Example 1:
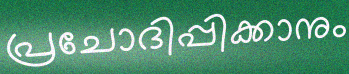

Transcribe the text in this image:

പ്രചോദിപ്പിക്കാനും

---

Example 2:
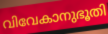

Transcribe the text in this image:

വിവേകാനുഭൂതി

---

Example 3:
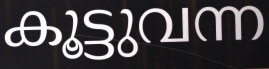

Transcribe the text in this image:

കൂട്ടുവന്ന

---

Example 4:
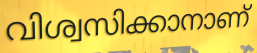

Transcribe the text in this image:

വിശ്വസിക്കാനാണ്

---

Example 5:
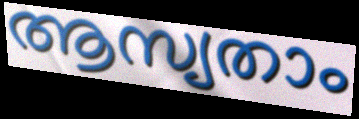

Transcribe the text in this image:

ആസ്യതാം